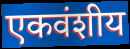
एकवंशीय